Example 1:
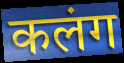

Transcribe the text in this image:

कलंग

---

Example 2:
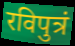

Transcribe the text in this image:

रविपुत्रं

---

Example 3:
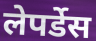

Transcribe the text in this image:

लेपर्डेस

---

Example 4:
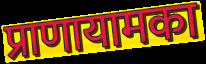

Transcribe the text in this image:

प्राणायामका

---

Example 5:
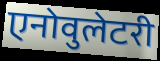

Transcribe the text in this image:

एनोवुलेटरी